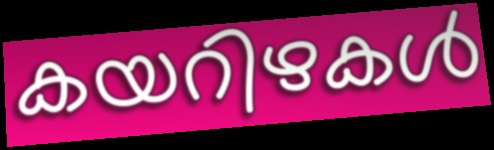
കയറിഴകൾ